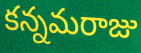
కన్నమరాజు